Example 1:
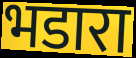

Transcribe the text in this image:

भडारा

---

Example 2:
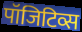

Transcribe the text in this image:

पॉजिटिव्स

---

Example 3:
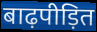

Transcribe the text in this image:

बाढ़पीड़ित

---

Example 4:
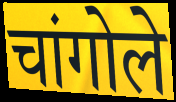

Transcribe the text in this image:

चांगोले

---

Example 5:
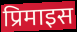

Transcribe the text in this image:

प्रिमाइस